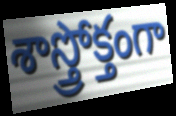
శాస్త్రోక్తంగా